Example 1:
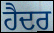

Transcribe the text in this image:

ਹੈਦਰ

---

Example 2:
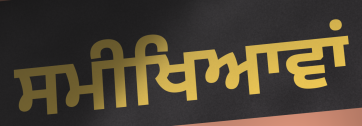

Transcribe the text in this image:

ਸਮੀਖਿਆਵਾਂ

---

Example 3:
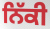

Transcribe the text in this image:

ਨਿੱਕੀ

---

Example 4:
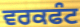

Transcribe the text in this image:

ਵਰਕਫੰਟ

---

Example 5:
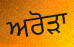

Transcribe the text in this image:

ਅਰੋੜਾ